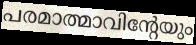
പരമാത്മാവിന്റേയും